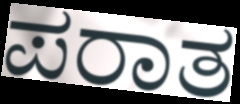
ಪರಾತ